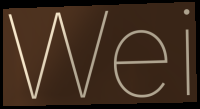
Wei